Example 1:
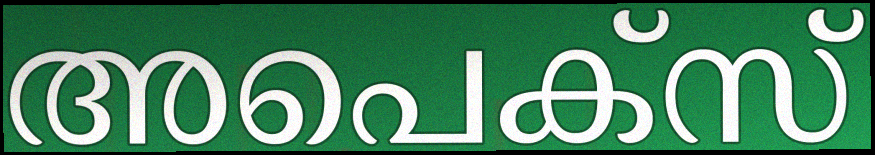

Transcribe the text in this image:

അപെക്സ്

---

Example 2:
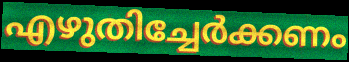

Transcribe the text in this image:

എഴുതിച്ചേർക്കണം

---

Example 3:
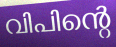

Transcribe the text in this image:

വിപിന്റെ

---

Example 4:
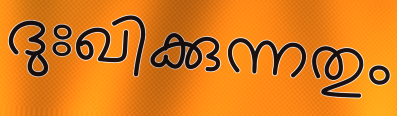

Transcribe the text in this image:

ദുഃഖിക്കുന്നതും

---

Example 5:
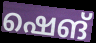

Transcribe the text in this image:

ഷെങ്